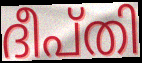
ദീപ്തി